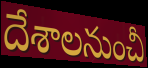
దేశాలనుంచీ